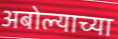
अबोल्याच्या